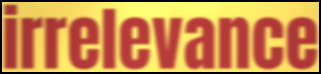
irrelevance